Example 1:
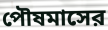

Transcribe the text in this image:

পৌষমাসের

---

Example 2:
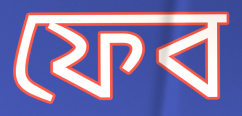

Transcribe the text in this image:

ফেব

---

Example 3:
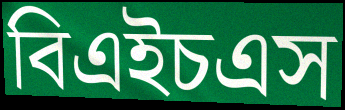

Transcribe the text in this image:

বিএইচএস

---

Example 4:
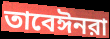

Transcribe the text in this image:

তাবেঈনরা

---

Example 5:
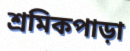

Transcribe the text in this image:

শ্রমিকপাড়া